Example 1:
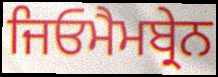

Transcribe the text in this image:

ਜਿਓਮੈਮਬ੍ਰੇਨ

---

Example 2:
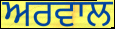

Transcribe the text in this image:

ਅਰਵਾਲ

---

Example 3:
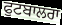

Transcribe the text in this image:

ਫੁਟਬਾਲਰਾ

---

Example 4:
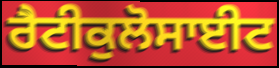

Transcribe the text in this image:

ਰੈਟੀਕੁਲੋਸਾਈਟ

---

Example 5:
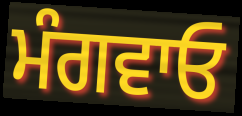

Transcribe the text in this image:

ਮੰਗਵਾਓ